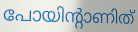
പോയിന്റാണിത്